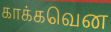
காக்கவென